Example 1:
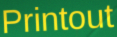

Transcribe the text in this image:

Printout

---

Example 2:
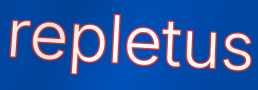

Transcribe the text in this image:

repletus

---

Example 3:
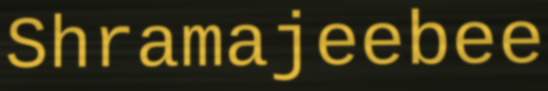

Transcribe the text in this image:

Shramajeebee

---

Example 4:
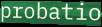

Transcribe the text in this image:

probatio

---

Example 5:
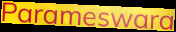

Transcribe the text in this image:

Parameswara